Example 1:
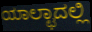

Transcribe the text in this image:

ಯಾಲ್ಟಾದಲ್ಲಿ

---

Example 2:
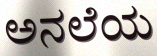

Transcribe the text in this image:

ಅನಲೆಯ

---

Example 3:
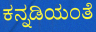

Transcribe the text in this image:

ಕನ್ನಡಿಯಂತೆ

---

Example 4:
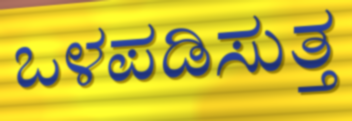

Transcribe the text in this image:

ಒಳಪಡಿಸುತ್ತ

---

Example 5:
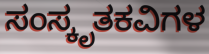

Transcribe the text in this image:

ಸಂಸ್ಕೃತಕವಿಗಳ